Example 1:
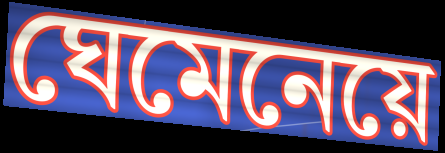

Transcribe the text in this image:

ঘেমেনেয়ে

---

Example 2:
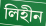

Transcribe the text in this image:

লিহীন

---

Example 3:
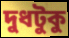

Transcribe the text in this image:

দুধটুকু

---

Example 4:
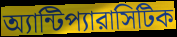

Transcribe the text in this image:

অ্যান্টিপ্যারাসিটিক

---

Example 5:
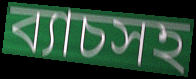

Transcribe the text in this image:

ব্যাচসহ